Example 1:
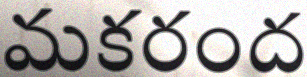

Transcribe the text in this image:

మకరంద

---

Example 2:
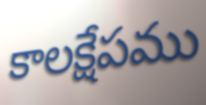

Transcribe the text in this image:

కాలక్షేపము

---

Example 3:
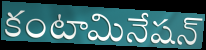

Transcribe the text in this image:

కంటామినేషన్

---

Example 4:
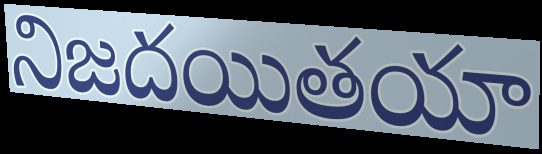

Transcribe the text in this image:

నిజదయితయా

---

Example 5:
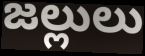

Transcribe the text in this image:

జల్లులు